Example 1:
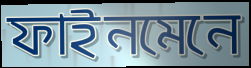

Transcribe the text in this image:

ফাইনমেনে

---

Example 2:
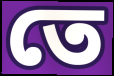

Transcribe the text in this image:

তে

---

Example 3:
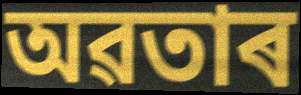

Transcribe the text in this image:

অৱতাৰ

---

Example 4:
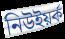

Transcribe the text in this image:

নিউইয়ৰ্ক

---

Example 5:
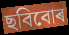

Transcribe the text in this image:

ছবিবোৰ